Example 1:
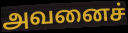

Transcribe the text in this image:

அவனைச்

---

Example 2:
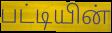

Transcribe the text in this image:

பட்டியின்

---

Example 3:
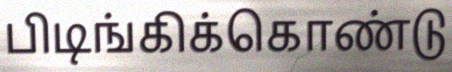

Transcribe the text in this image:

பிடிங்கிக்கொண்டு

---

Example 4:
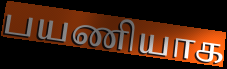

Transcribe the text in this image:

பயணியாக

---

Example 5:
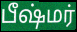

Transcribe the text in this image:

பீஷ்மர்